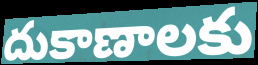
దుకాణాలకు